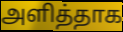
அளித்தாக